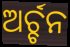
ଅର୍ଚ୍ଚନ